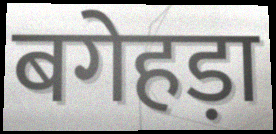
बगेहड़ा